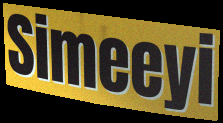
Simeeyi